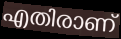
എതിരാണ്